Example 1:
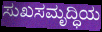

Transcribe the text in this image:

ಸುಖಸಮೃದ್ಧಿಯ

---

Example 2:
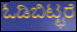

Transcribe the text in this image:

ಓಡಿಬಿಟ್ಟರೆ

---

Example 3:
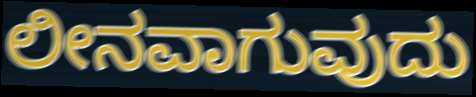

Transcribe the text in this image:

ಲೀನವಾಗುವುದು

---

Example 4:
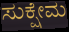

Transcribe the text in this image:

ಸುಕ್ಷೇಮ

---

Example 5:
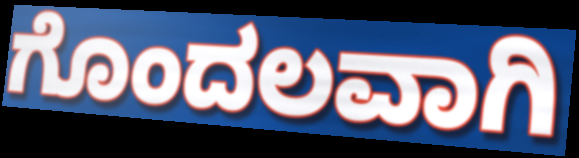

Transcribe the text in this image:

ಗೊಂದಲವಾಗಿ